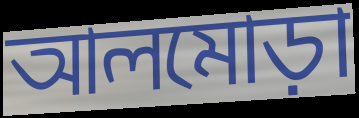
আলমোড়া